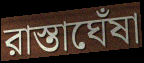
রাস্তাঘেঁষা